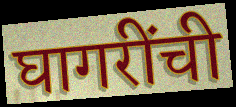
घागरींची